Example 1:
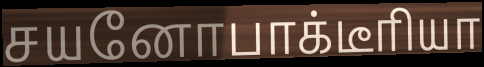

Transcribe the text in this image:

சயனோபாக்டீரியா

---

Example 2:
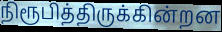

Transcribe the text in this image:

நிரூபித்திருக்கின்றன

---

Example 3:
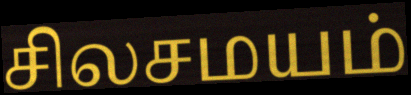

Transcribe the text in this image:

சிலசமயம்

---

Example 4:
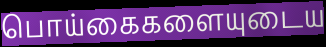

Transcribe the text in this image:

பொய்கைகளையுடைய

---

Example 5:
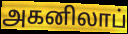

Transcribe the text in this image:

அகனிலாப்